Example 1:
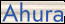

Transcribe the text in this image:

Ahura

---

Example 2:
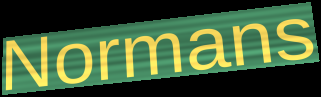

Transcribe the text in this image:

Normans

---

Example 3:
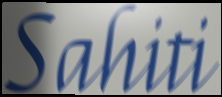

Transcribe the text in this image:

Sahiti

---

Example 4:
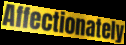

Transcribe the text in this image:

Affectionately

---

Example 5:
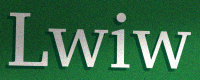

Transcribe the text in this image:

Lwiw